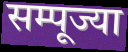
सम्पूज्या